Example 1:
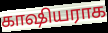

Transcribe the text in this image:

காஷியராக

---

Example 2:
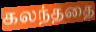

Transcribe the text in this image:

கலந்ததை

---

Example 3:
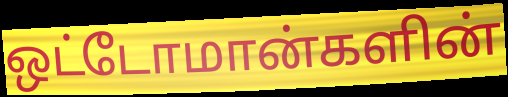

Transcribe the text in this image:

ஒட்டோமான்களின்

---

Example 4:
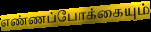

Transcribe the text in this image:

எண்ணப்போக்கையும்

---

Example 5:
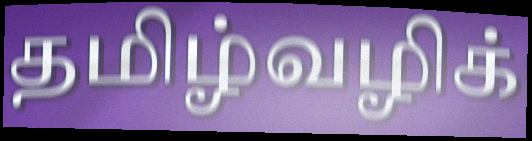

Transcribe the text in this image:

தமிழ்வழிக்